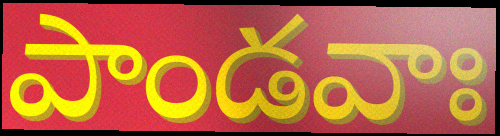
పాండవాః